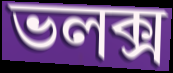
ভলক্স